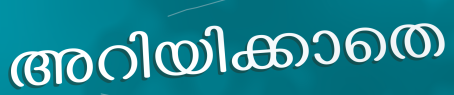
അറിയിക്കാതെ